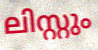
ലിസ്റ്റും